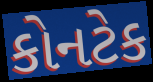
કોનટેક